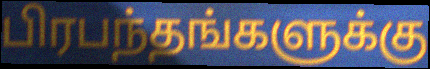
பிரபந்தங்களுக்கு